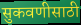
सुकवणीसाठी